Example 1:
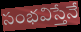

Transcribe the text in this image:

సంభవిస్తేనే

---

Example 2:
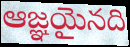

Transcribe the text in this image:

ఆజ్ఞయైనది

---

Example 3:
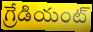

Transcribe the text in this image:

గ్రేడియంట్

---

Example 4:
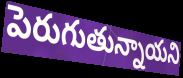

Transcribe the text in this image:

పెరుగుతున్నాయని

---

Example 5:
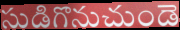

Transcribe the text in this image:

సుడిగొనుచుండె